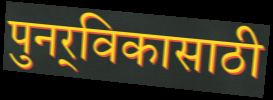
पुनर्विकासाठी